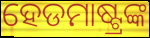
ହେଡମାଷ୍ଟ୍ରଙ୍କ